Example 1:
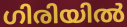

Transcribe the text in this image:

ഗിരിയിൽ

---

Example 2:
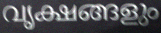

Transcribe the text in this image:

വൃക്ഷങ്ങളും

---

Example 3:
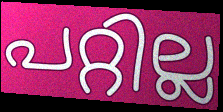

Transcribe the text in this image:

പറ്റില്ല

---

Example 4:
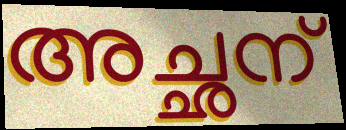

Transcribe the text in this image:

അച്ഛന്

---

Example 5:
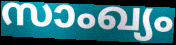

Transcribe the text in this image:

സാംഖ്യം